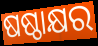
ଷଷ୍ଠାକ୍ଷର